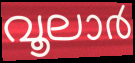
വൂലാർ